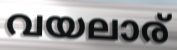
വയലാര്